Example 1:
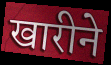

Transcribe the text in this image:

खारीने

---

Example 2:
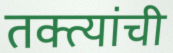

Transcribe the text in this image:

तक्त्यांची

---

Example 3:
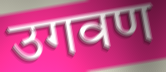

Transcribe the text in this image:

उगवण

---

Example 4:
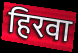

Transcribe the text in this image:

हिरवा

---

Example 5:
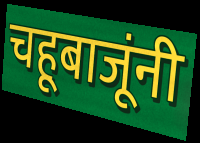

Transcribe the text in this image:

चहूबाजूंनी